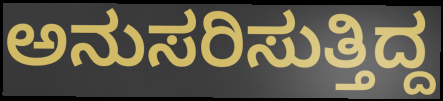
ಅನುಸರಿಸುತ್ತಿದ್ದ